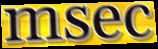
msec